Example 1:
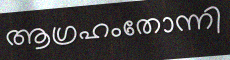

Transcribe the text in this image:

ആഗ്രഹംതോന്നി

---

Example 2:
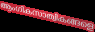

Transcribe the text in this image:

ആംഗികസാത്വികങ്ങളെ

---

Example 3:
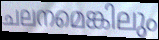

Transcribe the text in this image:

ചലനമെങ്കിലും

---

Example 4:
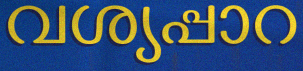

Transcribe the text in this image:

വശ്യപ്പാറ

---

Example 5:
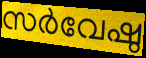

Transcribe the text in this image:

സർവേഷു